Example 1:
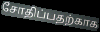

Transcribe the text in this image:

சோதிப்பதற்காக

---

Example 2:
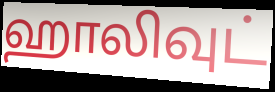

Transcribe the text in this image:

ஹாலிவுட்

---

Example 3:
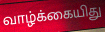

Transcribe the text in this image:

வாழ்க்கையிது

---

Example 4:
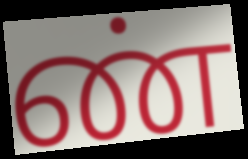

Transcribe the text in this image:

ண்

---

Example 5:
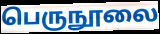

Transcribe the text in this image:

பெருநூலை